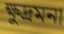
ক্ষুদ্রমনা